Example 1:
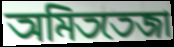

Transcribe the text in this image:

অমিততেজা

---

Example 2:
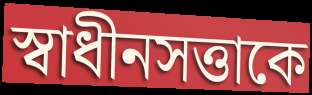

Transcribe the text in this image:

স্বাধীনসত্তাকে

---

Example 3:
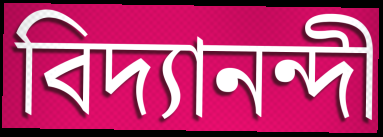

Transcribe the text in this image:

বিদ্যানন্দী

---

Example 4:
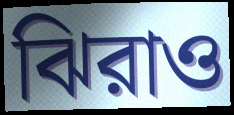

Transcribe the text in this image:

ঝিরাও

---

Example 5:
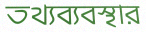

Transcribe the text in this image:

তথ্যব্যবস্থার